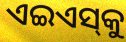
ଏଇଏସ୍‌କୁ